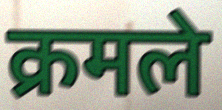
क्रमले